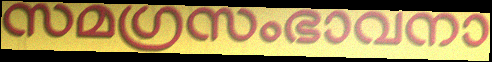
സമഗ്രസംഭാവനാ